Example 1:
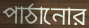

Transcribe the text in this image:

পাঠানোর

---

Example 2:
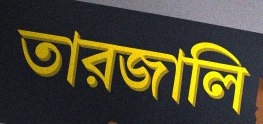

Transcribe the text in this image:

তারজালি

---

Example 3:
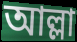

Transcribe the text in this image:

আল্লা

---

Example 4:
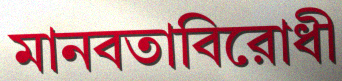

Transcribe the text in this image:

মানবতাবিরোধী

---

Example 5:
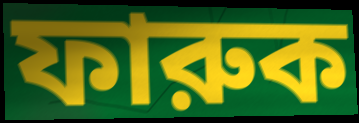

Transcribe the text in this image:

ফারুক